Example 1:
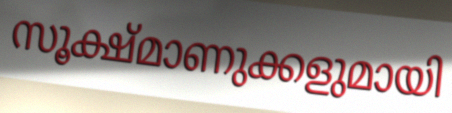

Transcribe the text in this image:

സൂക്ഷ്മാണുക്കളുമായി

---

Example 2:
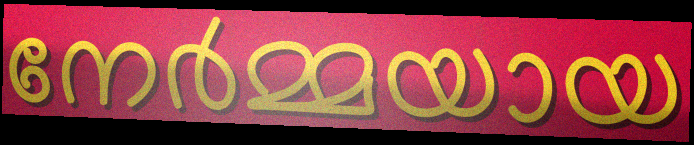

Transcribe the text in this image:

നേർമ്മയായ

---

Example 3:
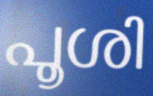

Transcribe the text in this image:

പൂശി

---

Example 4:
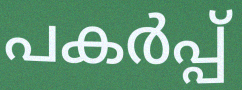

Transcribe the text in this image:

പകർപ്പ്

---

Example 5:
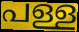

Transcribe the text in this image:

പള്ള